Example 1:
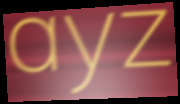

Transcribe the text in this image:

ayz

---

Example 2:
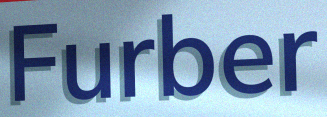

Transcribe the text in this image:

Furber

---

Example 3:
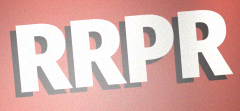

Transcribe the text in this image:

RRPR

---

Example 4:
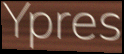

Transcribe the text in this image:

Ypres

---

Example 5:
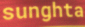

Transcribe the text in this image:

sunghta